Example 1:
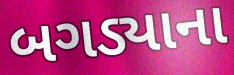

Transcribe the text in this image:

બગડ્યાના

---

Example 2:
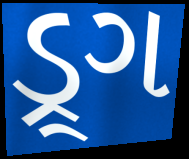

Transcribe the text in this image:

ડ્ર્ગ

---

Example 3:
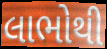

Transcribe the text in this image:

લાભોથી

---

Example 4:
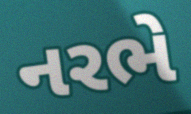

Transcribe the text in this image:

નરભે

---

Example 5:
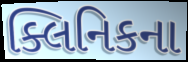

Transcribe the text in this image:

ક્લિનિકના